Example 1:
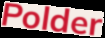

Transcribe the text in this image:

Polder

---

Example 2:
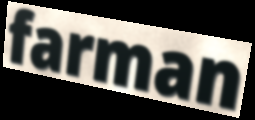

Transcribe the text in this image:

farman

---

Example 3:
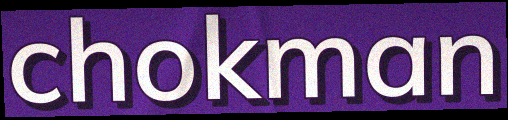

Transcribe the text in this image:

chokman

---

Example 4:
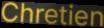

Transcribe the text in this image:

Chretien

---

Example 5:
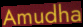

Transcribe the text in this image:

Amudha